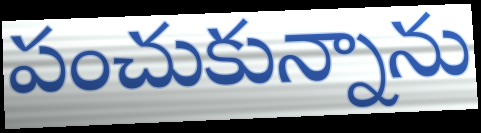
పంచుకున్నాను